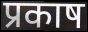
प्रकाष